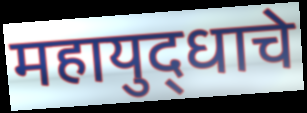
महायुद्धाचे